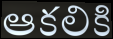
ఆకలికి